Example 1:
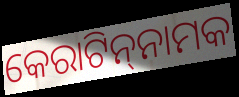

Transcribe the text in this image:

କେରାଟିନ୍‌ନାମକ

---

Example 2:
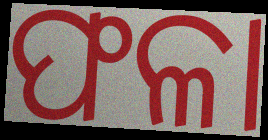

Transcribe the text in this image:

ଫଳା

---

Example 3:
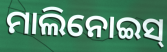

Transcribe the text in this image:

ମାଲିନୋଇସ୍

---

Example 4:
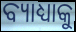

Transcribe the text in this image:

ବ୍ୟାଧ୍ୟାକୁ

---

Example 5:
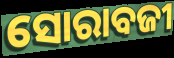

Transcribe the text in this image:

ସୋରାବଜୀ